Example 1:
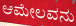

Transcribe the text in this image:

ಆಮೇಲವನು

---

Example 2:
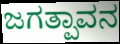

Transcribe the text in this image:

ಜಗತ್ಪಾವನ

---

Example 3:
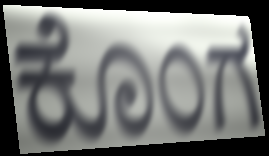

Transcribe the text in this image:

ಕೊಂಗ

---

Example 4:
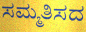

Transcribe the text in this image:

ಸಮ್ಮತಿಸದ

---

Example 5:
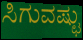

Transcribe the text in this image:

ಸಿಗುವಷ್ಟು